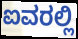
ಐವರಲ್ಲಿ